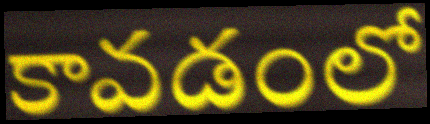
కావడంలో